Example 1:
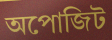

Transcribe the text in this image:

অপোজিট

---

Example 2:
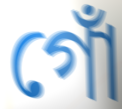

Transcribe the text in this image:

গোঁ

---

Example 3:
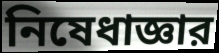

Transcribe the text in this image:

নিষেধাজ্ঞার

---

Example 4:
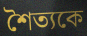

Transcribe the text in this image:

শৈত্যকে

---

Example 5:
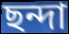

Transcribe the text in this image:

ছন্দা